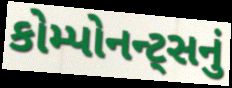
કોમ્પોનન્ટ્સનું